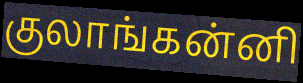
குலாங்கன்னி